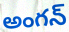
అంగన్